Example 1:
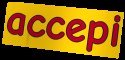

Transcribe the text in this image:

accepi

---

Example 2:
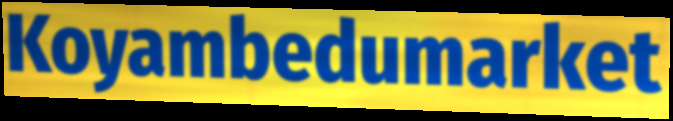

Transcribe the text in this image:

Koyambedumarket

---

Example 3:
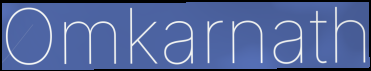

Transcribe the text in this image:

Omkarnath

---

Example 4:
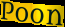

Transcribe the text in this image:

Poon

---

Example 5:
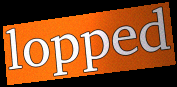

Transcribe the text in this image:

lopped